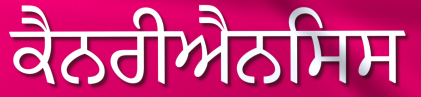
ਕੈਨਰੀਐਨਸਿਸ